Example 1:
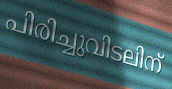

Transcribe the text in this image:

പിരിച്ചുവിടലിന്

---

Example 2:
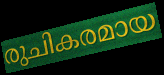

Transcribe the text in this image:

രുചികരമായ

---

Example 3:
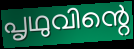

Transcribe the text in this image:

പൃഥുവിന്റെ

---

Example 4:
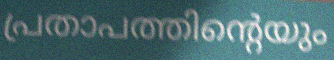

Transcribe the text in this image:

പ്രതാപത്തിന്റെയും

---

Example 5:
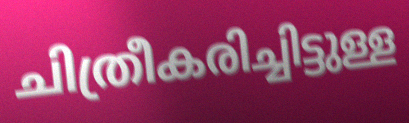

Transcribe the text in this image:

ചിത്രീകരിച്ചിട്ടുള്ള